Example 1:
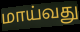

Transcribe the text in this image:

மாய்வது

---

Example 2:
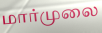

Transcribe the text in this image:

மார்முலை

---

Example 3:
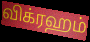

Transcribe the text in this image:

விக்ரஹம்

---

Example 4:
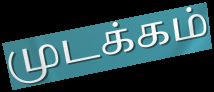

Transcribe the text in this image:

முடக்கம்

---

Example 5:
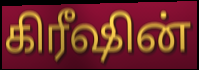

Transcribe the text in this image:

கிரீஷின்